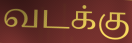
வடக்கு